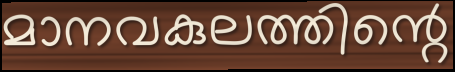
മാനവകുലത്തിന്റെ